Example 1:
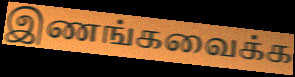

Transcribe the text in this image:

இணங்கவைக்க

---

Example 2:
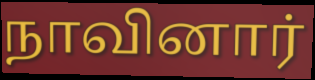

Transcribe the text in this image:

நாவினார்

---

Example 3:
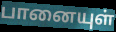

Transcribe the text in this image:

பானையுள்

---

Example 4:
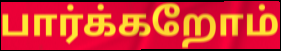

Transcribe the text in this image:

பார்க்கறோம்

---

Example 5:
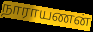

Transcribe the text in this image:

நாராயணன்